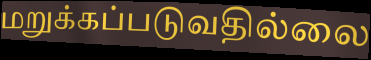
மறுக்கப்படுவதில்லை